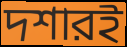
দশারই